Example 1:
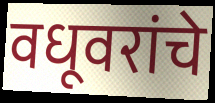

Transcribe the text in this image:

वधूवरांचे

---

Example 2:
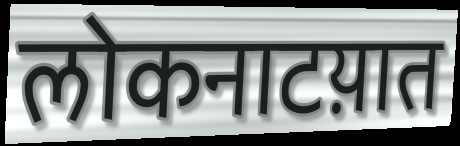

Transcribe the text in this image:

लोकनाटय़ात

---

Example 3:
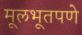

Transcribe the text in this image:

मूलभूतपणे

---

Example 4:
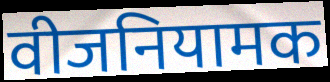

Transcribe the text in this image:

वीजनियामक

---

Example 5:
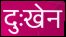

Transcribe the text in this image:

दुःखेन